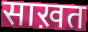
साख़त